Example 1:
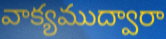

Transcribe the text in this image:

వాక్యముద్వారా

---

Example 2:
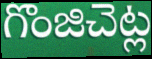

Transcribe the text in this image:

గొంజిచెట్ల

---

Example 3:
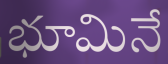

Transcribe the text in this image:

భూమినే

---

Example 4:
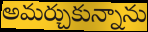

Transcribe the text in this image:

అమర్చుకున్నాను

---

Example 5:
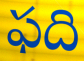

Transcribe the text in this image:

ఫది